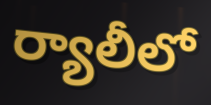
ర్యాలీలో